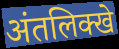
अंतलिक्खे